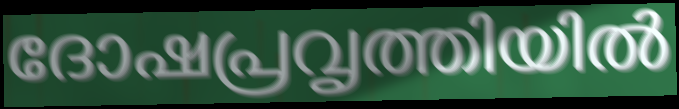
ദോഷപ്രവൃത്തിയിൽ